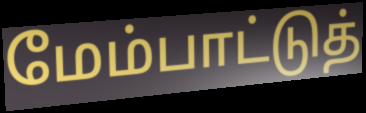
மேம்பாட்டுத்